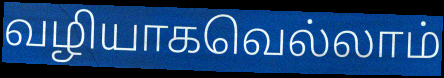
வழியாகவெல்லாம்